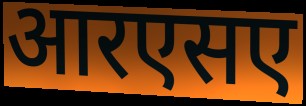
आरएसए